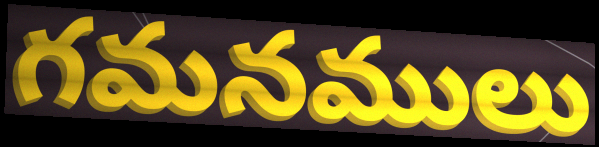
గమనములు